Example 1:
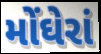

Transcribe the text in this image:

મોંઘેરાં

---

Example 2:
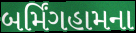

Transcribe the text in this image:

બર્મિંગહામના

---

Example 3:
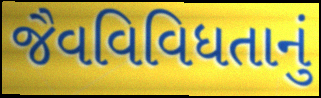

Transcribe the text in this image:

જૈવવિવિધતાનું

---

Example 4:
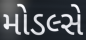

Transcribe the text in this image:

મોડલ્સે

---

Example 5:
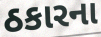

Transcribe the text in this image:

ઠકારના